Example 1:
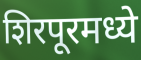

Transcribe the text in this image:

शिरपूरमध्ये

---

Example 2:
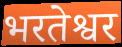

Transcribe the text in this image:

भरतेश्वर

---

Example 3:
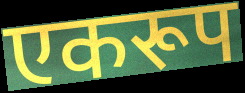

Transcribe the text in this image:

एकरूप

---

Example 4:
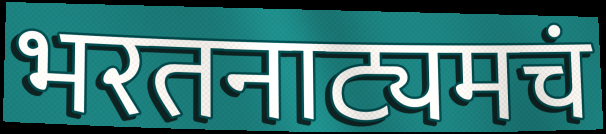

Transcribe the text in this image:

भरतनाट्यमचं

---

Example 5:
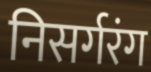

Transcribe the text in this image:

निसर्गरंग